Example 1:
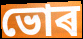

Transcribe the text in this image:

ভোৰ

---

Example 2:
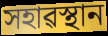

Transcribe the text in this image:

সহাৱস্থান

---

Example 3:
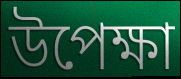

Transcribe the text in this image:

উপেক্ষা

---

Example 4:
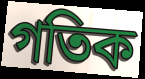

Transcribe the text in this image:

গতিক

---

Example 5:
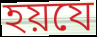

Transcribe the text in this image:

হয়যে